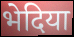
भेदिया